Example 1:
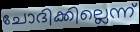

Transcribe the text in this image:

ചോദിക്കില്ലെന്ന്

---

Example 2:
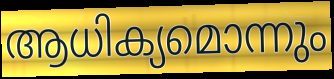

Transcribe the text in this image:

ആധിക്യമൊന്നും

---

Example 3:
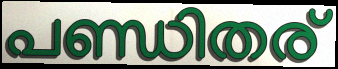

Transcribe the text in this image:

പണ്ഡിതര്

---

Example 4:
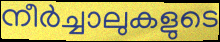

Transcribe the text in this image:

നീർച്ചാലുകളുടെ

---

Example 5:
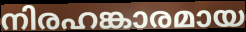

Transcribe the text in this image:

നിരഹങ്കാരമായ